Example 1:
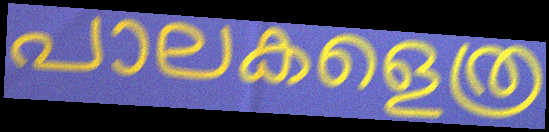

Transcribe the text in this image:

പാലകളെത്ര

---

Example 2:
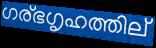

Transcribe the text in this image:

ഗര്ഭഗൃഹത്തില്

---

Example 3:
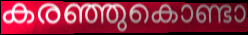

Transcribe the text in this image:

കരഞ്ഞുകൊണ്ടാ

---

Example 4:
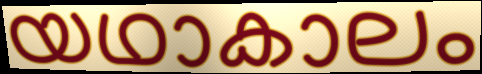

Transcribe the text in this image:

യഥാകാലം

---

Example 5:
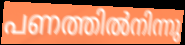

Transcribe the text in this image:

പണത്തിൽനിന്നു